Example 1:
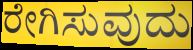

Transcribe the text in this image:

ರೇಗಿಸುವುದು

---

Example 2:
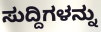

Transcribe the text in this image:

ಸುದ್ದಿಗಳನ್ನು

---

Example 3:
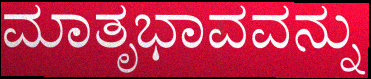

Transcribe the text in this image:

ಮಾತೃಭಾವವನ್ನು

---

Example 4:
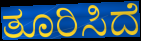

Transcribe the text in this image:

ತೂರಿಸಿದೆ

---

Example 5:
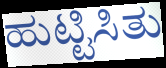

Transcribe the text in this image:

ಹುಟ್ಟಿಸಿತು